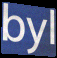
byl